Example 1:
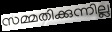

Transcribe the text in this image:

സമ്മതിക്കുന്നില്ല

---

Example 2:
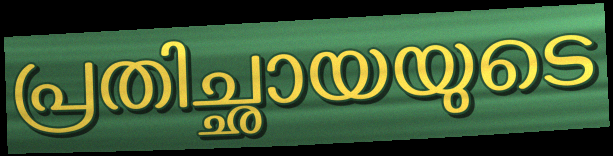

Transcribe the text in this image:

പ്രതിച്ഛായയുടെ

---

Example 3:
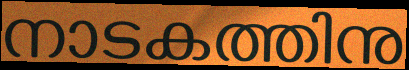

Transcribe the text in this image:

നാടകത്തിനു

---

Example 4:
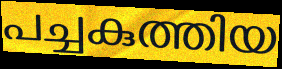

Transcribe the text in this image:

പച്ചകുത്തിയ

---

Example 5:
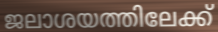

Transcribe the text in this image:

ജലാശയത്തിലേക്ക്